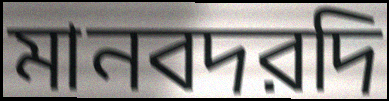
মানবদরদি